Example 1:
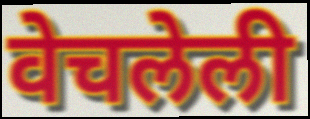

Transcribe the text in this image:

वेचलेली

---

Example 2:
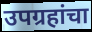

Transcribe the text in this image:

उपग्रहांचा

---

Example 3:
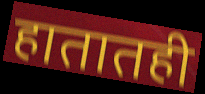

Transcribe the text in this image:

हातातही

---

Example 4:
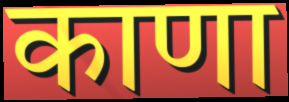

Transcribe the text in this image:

काणा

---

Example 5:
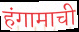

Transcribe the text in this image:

हंगामाची